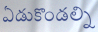
ఏడుకొండల్ని